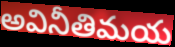
అవినీతిమయ